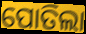
ପୋତିଲା